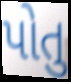
પોતુ